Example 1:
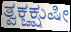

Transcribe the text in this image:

ತ್ವಕ್ಚಕ್ಷುಷೀ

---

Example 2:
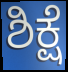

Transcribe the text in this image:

ಶಿಕ್ಷೆ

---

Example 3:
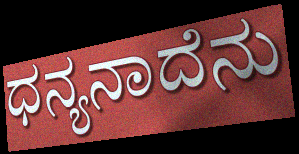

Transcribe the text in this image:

ಧನ್ಯನಾದೆನು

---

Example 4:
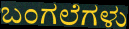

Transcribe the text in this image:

ಬಂಗಲೆಗಳು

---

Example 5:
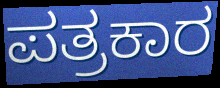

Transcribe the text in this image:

ಪತ್ರಕಾರ